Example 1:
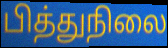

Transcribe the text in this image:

பித்துநிலை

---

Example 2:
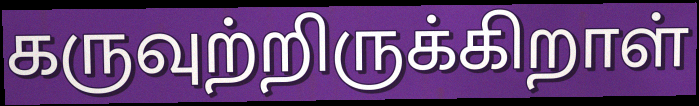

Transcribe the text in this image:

கருவுற்றிருக்கிறாள்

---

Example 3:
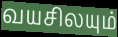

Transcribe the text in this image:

வயசிலயும்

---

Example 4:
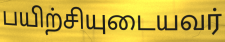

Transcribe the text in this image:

பயிற்சியுடையவர்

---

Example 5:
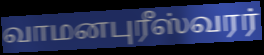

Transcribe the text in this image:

வாமனபுரீஸ்வரர்